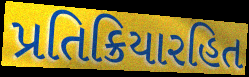
પ્રતિક્રિયારહિત